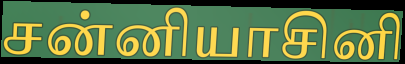
சன்னியாசினி